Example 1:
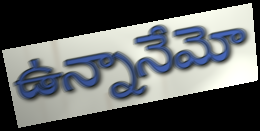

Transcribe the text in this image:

ఉన్నానేమో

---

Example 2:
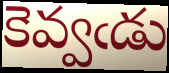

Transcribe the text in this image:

కెవ్వఁడు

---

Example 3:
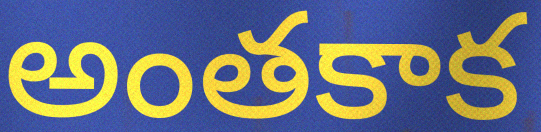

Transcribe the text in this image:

అంతకాక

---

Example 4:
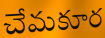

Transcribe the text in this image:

చేమకూర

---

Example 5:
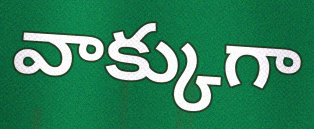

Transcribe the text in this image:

వాక్కుగా